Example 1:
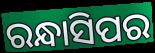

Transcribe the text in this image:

ରନ୍ଧାସିପର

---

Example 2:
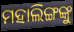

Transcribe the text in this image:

ମହାଲିଙ୍ଗଙ୍କୁ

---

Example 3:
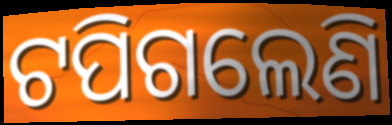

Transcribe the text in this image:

ଟପିଗଲେଣି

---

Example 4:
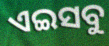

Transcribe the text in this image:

ଏଇସବୁ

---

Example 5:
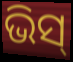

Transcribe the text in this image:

ଭିସ୍